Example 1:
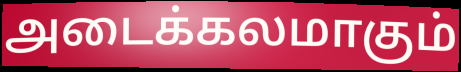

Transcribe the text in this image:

அடைக்கலமாகும்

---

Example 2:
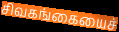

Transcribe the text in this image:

சிவகங்கையைச்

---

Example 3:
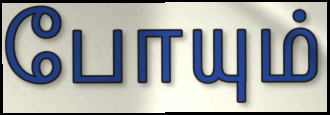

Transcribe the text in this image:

போயும்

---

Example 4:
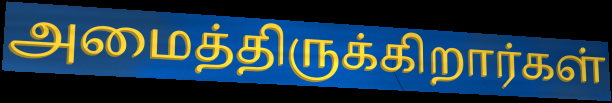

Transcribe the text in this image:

அமைத்திருக்கிறார்கள்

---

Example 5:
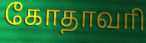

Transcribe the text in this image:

கோதாவரி